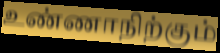
உண்ணாநிற்கும்